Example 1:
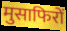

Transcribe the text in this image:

मुसाफिरों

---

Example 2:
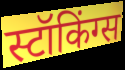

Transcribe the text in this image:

स्टॉकिंग्स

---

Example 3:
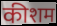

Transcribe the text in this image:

कीशम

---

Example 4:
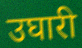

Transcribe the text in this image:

उघारी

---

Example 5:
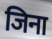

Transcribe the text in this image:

जिना